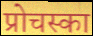
प्रोचस्का